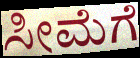
ಸೀಮೆಗೆ